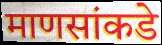
माणसांकडे